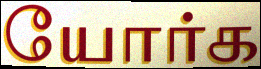
யோர்க